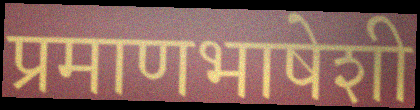
प्रमाणभाषेशी